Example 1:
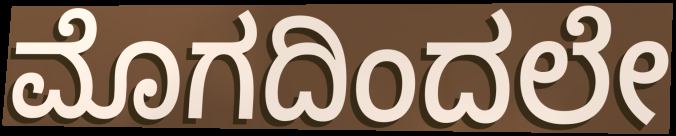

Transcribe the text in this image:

ಮೊಗದಿಂದಲೇ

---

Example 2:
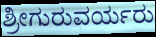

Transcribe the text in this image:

ಶ್ರೀಗುರುವರ್ಯರು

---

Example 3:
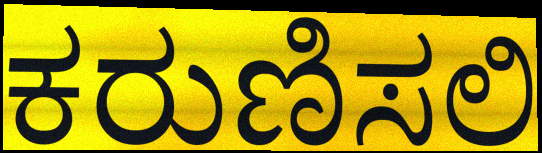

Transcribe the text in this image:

ಕರುಣಿಸಲಿ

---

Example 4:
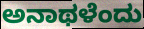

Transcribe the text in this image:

ಅನಾಥಳೆಂದು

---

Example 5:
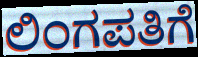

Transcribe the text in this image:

ಲಿಂಗಪತಿಗೆ